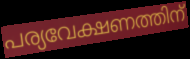
പര്യവേക്ഷണത്തിന്